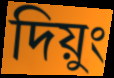
দিয়ুং